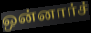
ஒன்னார்ச்